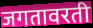
जगतावरती